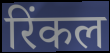
रिंकल